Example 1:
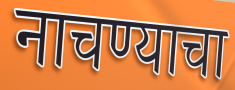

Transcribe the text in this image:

नाचण्याचा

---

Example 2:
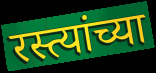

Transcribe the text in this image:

रस्त्यांच्या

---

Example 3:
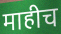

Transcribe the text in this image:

माहीच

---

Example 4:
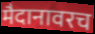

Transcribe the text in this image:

मैदानावरच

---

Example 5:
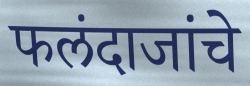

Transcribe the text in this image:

फलंदाजांचे